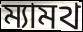
ম্যামথ